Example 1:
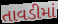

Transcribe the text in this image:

તાવડીમાં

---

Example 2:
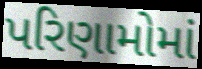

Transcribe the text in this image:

પરિણામોમાં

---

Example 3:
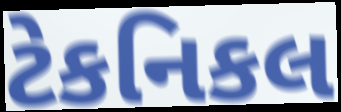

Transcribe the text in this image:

ટેકનિકલ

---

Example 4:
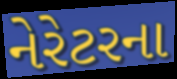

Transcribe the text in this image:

નેરેટરના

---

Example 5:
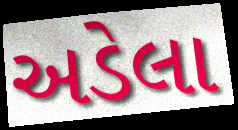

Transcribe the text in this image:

અડેલા